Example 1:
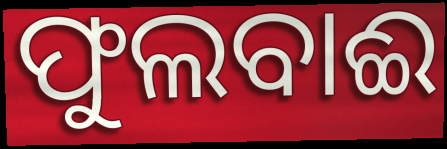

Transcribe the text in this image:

ଫୁଲବାଈ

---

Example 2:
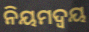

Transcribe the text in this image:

ନିୟମଦ୍ୱୟ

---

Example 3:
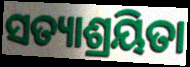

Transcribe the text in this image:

ସତ୍ୟାଶ୍ରୟିତା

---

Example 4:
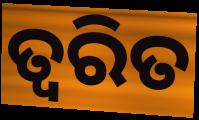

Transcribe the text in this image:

ତ୍ବରିତ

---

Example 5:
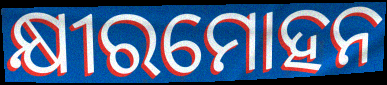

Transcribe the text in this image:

କ୍ଷୀରମୋହନ